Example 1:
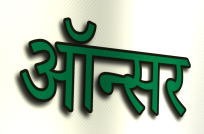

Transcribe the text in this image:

ऑन्सर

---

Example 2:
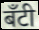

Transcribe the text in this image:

बँटी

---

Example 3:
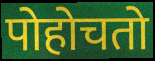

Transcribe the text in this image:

पोहोचतो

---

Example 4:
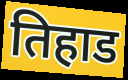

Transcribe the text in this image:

तिहाड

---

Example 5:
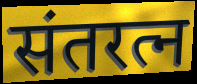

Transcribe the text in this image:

संतरत्न